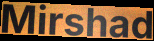
Mirshad